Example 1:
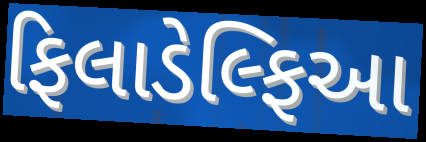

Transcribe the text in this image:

ફિલાડેલ્ફિઆ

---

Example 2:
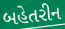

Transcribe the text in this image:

બહેતરીન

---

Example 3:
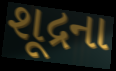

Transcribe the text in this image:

શૂદ્રના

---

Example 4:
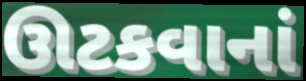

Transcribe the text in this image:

ઊટકવાનાં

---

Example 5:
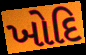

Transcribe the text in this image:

ખોદિ